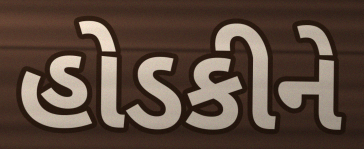
હોડકીને